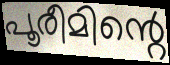
പൂരീമിന്റെ